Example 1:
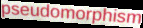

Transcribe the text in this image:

pseudomorphism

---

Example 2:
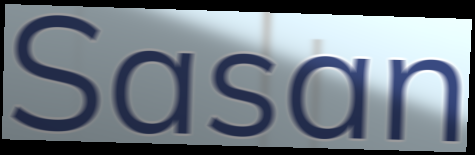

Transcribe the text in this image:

Sasan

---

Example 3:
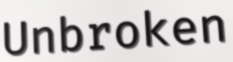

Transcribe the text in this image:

Unbroken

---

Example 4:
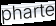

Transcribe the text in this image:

pharte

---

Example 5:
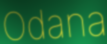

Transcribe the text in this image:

Odana